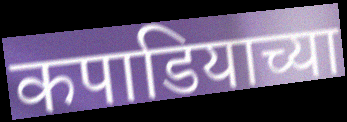
कपाडियाच्या